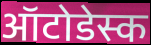
ऑटोडेस्क